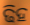
ଢିହ